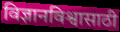
विज्ञानविश्वासाठी